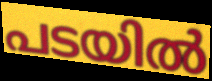
പടയിൽ